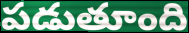
పడుతూంది